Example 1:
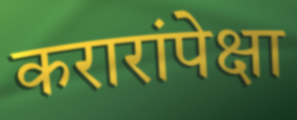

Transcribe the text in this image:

करारांपेक्षा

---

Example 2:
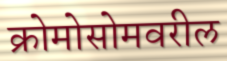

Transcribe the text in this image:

क्रोमोसोमवरील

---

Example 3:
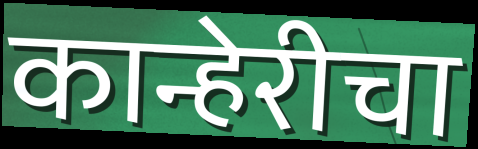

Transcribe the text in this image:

कान्हेरीचा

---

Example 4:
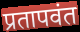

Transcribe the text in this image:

प्रतापवंत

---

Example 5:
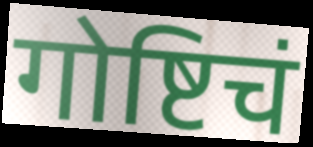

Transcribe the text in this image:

गोष्टिचं